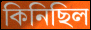
কিনিছিল